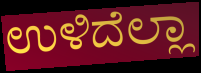
ಉಳಿದೆಲ್ಲಾ